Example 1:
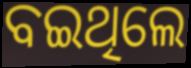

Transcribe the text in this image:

ବଇଥିଲେ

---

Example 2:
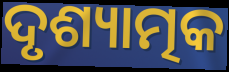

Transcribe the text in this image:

ଦୃଶ୍ୟାତ୍ମକ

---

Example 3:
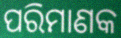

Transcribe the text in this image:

ପରିମାଣକ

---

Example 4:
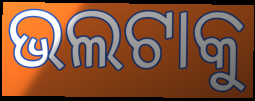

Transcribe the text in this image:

ଭଲଟାକୁ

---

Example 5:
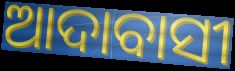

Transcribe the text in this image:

ଆଦାବାସୀ